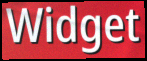
Widget